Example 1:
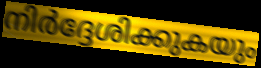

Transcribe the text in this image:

നിർദ്ദേശിക്കുകയും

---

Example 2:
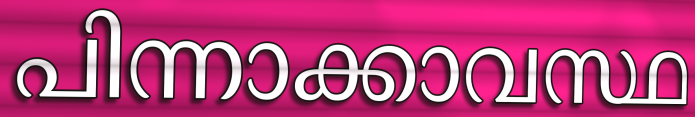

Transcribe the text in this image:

പിന്നാക്കാവസ്ഥ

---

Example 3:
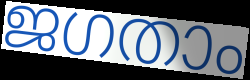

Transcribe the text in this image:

ജഗതാം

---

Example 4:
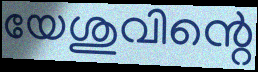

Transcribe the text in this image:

യേശുവിന്റെ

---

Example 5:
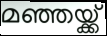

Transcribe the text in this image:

മഞ്ഞയ്ക്ക്